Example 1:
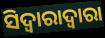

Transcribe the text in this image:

ସିଦ୍ୱାରାଦ୍ୱାରା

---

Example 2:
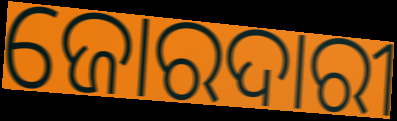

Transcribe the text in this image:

ଜୋରଦାରୀ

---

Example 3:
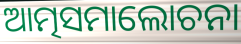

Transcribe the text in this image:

ଆତ୍ମସମାଲୋଚନା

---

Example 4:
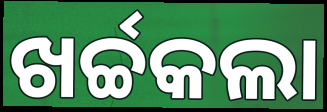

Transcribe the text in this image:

ଖର୍ଚ୍ଚକଲା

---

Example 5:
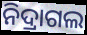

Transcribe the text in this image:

ନିଦ୍ରାଗଲ